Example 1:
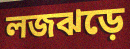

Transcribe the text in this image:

লজঝড়ে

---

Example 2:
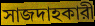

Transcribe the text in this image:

সাজদাহকারী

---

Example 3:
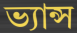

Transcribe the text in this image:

ভ্যান্স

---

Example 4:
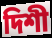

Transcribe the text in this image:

দিশী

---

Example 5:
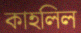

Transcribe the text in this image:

কাহলিল